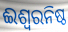
ଈଶ୍ୱରନିଷ୍ଠ